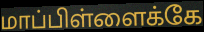
மாப்பிள்ளைக்கே